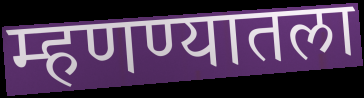
म्हणण्यातला